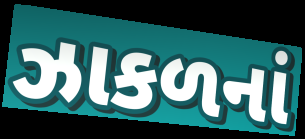
ઝાકળનાં